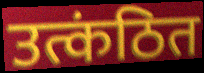
उत्कंठित